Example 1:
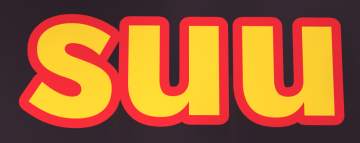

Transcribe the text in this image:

suu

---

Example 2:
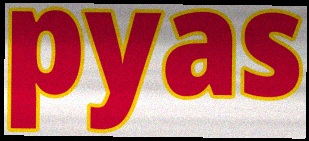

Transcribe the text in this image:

pyas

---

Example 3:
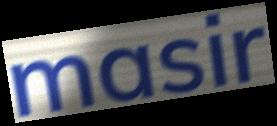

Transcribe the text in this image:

masir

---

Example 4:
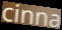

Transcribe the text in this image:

cinna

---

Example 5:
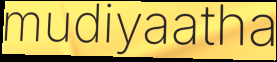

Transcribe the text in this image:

mudiyaatha